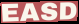
EASD